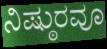
ನಿಷ್ಠುರವೂ